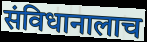
संविधानालाच